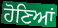
ਹੋਣਿਆਂ